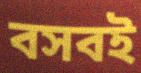
বসবই